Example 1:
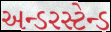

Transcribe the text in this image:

અન્ડરસ્ટેન્ડ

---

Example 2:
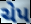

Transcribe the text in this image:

ચેપ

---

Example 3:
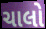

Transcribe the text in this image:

ચાલો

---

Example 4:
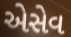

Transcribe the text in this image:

એસેવ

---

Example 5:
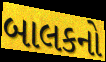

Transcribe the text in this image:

બાલકનો